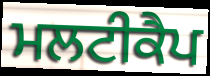
ਮਲਟੀਕੈਪ